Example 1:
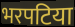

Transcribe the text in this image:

भरपटिया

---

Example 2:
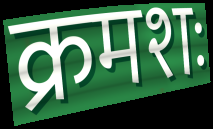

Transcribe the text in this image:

क्रमशः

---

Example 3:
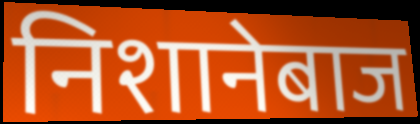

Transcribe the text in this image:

निशानेबाज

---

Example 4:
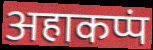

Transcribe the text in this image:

अहाकप्पं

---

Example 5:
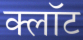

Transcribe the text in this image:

क्‍लॉट